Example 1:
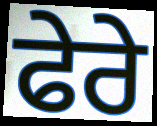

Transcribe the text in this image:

ਫੇਰੇ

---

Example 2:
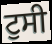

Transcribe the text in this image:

ਟੁਸੀ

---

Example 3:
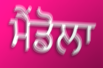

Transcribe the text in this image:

ਮੈਂਡੋਲਾ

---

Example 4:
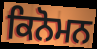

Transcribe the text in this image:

ਕਿਨੋਮਨ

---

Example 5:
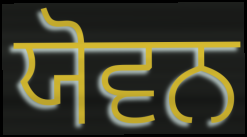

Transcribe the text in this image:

ਯੋਵਨ